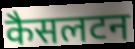
कैसलटन